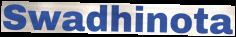
Swadhinota